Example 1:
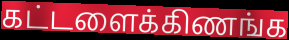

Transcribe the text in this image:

கட்டளைக்கிணங்க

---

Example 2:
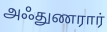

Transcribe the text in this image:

அஃதுணரார்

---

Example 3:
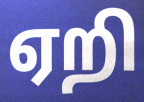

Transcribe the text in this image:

ஏறி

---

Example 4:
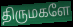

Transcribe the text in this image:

திருமகளே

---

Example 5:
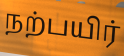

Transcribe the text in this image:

நற்பயிர்